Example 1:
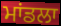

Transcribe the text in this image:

ਮਾਂਡਲਾ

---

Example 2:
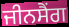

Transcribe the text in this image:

ਜੀਨਸੈਂਗ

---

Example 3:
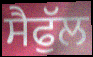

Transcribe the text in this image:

ਸੈਫੁੱਲ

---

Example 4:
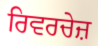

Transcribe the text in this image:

ਰਿਵਰਚੇਜ਼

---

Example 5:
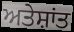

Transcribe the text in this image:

ਅਤੇਸ਼ਾਂਤ